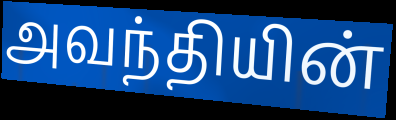
அவந்தியின்